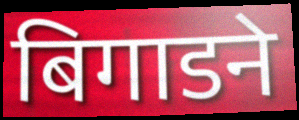
बिगाडने